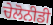
ਚੇਲੋਨੀਡੀ